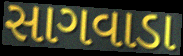
સાગવાડા